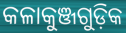
କଳାକୁଞ୍ଜଗୁଡ଼ିକ